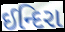
ઈન્દિરા